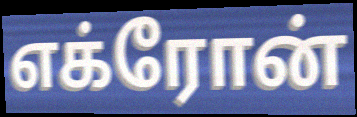
எக்ரோன்